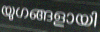
യുഗങ്ങളായി